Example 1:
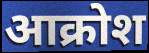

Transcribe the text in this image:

आक्रोश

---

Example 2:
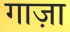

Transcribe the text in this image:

गाज़ा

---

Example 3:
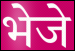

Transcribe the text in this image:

भेजे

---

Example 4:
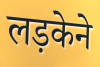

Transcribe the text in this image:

लड़केने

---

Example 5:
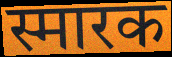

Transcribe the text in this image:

स्मारक